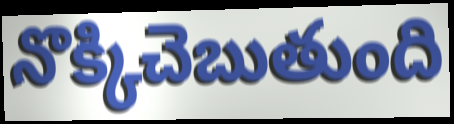
నొక్కిచెబుతుంది